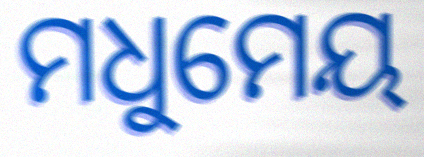
ମଧୁମେୟ